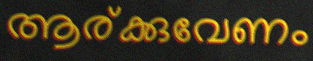
ആര്ക്കുവേണം